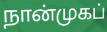
நான்முகப்